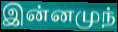
இன்னமுந்